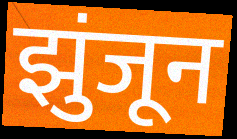
झुंजून